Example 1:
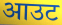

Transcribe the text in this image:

आउट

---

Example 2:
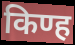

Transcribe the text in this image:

किण्ह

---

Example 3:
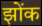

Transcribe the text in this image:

झोंक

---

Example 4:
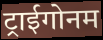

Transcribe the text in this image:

ट्राईगोनम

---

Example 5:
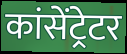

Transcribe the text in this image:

कांसेंट्रेटर